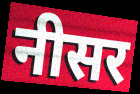
नीसर